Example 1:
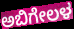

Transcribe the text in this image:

ಅಬಿಗೇಲಳ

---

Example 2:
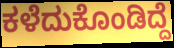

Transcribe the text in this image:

ಕಳೆದುಕೊಂಡಿದ್ದೆ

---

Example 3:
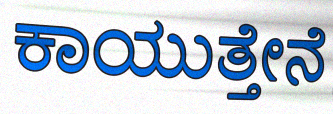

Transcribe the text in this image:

ಕಾಯುತ್ತೇನೆ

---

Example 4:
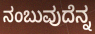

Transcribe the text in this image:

ನಂಬುವುದೆನ್ನ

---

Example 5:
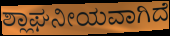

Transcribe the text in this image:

ಶ್ಲಾಘನೀಯವಾಗಿದೆ